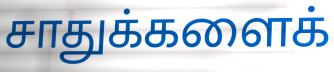
சாதுக்களைக்